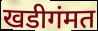
खडीगंमत